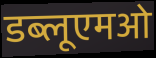
डब्लूएमओ